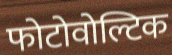
फोटोवोल्टिक